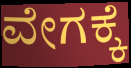
ವೇಗಕ್ಕೆ